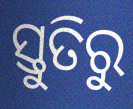
ସ୍ତୁତିରୁ